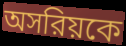
অসরিয়কে